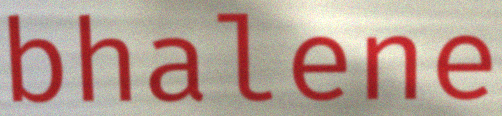
bhalene